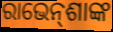
ରାଭେନ୍‌ଶାଙ୍କ